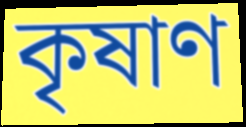
কৃষাণ